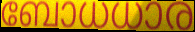
ബോധധാര